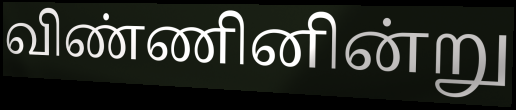
விண்ணினின்று